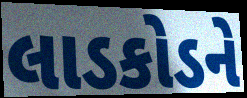
લાડકોડને